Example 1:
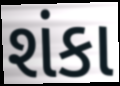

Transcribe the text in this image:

શંકા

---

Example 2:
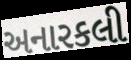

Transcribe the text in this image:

અનારકલી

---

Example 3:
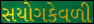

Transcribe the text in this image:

સયોગકેવળી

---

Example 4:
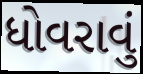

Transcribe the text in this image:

ધોવરાવું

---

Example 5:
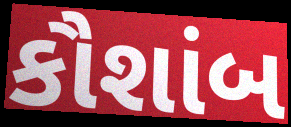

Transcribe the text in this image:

કૌશાંબ